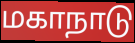
மகாநாடு